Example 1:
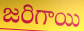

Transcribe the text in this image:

జరిగాయి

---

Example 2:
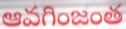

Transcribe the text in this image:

ఆవగింజంత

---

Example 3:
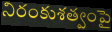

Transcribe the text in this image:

నిరంకుశత్వంపై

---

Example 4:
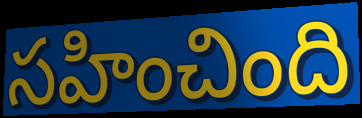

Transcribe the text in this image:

సహించింది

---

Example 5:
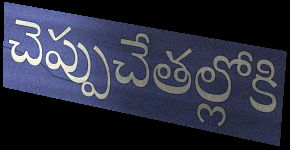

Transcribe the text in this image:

చెప్పుచేతల్లోకి